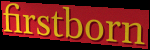
firstborn